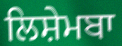
ਲਿਸ਼ੇਮਬਾ